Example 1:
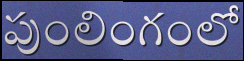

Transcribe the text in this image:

పుంలింగంలో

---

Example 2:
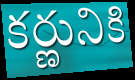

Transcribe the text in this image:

కర్ణునికి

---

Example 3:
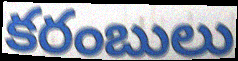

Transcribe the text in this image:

కరంబులు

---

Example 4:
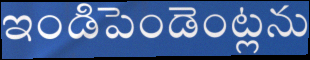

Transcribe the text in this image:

ఇండిపెండెంట్లను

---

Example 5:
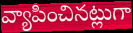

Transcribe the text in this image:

వ్యాపించినట్లుగా